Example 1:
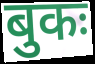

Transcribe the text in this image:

बुकः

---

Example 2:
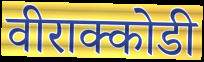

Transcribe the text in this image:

वीराक्कोडी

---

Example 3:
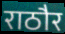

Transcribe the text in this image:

राठौर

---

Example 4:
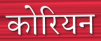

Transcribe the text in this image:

कोरियन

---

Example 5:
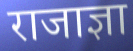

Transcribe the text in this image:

राजाज्ञा